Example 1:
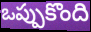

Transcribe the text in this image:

ఒప్పుకొంది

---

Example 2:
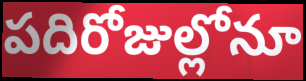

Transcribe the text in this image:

పదిరోజుల్లోనూ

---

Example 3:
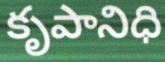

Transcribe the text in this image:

కృపానిధి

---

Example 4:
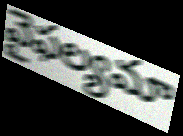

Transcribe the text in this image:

వైఫల్యమా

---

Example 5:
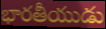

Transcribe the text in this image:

భారతీయుడు